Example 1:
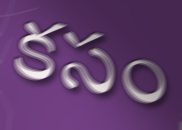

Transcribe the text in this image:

కసం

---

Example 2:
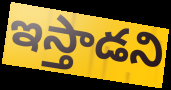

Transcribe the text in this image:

ఇస్తాడని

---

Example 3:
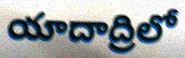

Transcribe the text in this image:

యాదాద్రిలో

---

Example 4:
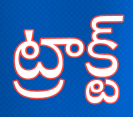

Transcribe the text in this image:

ట్రాక్ట్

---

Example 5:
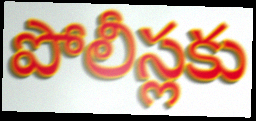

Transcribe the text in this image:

పోలీస్లకు